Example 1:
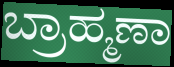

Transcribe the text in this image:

ಬ್ರಾಹ್ಮಣಾ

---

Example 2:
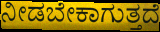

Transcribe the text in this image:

ನೀಡಬೇಕಾಗುತ್ತದೆ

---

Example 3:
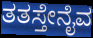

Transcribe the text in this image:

ತತಸ್ತೇನೈವ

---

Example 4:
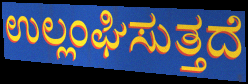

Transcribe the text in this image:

ಉಲ್ಲಂಘಿಸುತ್ತದೆ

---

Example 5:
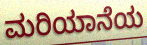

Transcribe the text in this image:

ಮರಿಯಾನೆಯ